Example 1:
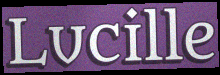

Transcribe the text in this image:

Lucille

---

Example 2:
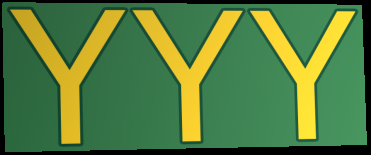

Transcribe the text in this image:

YYY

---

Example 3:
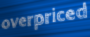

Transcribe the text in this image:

overpriced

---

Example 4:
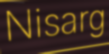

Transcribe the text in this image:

Nisarg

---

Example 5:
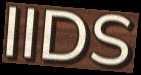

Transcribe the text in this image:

IIDS